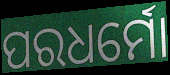
ପରଧର୍ମୋ